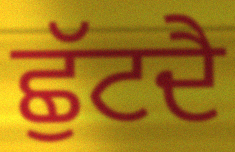
ਛੁੱਟਦੈ